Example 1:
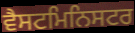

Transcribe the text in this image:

ਵੈਸਟਮਿਨਿਸਟਰ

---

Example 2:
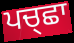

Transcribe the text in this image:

ਪਚ੍ਛਾ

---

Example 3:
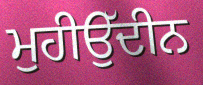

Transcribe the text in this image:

ਮੁਹੀਉੱਦੀਨ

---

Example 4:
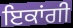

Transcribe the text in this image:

ਇਕਾਂਗੀ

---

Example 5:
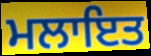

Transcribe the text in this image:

ਮਲਾਇਤ